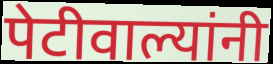
पेटीवाल्यांनी